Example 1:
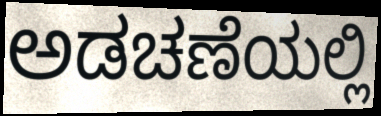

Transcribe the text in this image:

ಅಡಚಣೆಯಲ್ಲಿ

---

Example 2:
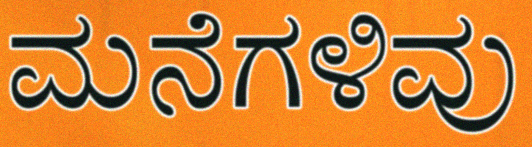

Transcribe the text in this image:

ಮನೆಗಳಿವು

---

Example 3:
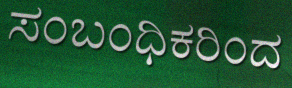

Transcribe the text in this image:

ಸಂಬಂಧಿಕರಿಂದ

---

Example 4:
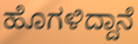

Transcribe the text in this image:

ಹೊಗಳಿದ್ದಾನೆ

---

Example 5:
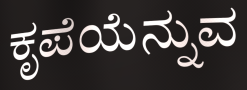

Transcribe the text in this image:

ಕೃಪೆಯೆನ್ನುವ